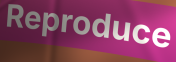
Reproduce